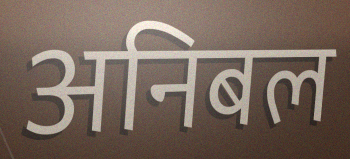
अनिबल